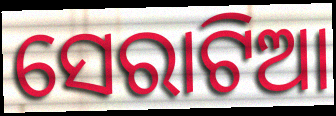
ସେରାଟିଆ